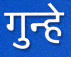
गुन्हे